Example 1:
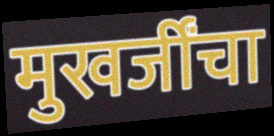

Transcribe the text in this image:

मुखर्जींचा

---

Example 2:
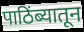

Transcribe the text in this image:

पाठिंब्यातून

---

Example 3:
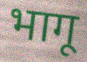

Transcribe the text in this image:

भागू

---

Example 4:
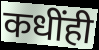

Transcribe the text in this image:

कधींही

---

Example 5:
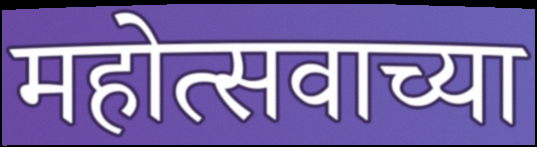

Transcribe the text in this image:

महोत्सवाच्या